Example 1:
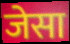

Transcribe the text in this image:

जेसा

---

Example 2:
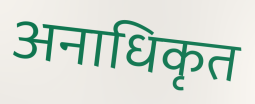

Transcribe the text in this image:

अनाधिकृत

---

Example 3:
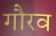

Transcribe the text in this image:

गौरव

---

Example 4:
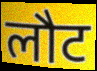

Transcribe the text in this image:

लौट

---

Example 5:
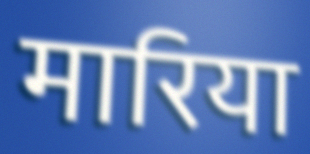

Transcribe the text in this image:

मारिया